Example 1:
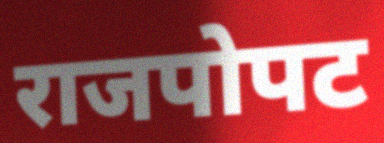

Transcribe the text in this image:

राजपोपट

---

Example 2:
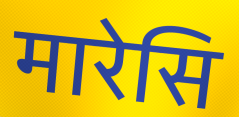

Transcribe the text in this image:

मारेसि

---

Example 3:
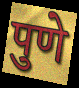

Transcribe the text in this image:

पुणे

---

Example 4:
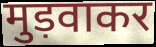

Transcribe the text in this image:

मुड़वाकर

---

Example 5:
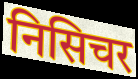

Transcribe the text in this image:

निसिचर